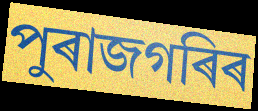
পুৰাজগৰিৰ